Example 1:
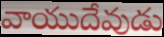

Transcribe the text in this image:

వాయుదేవుడు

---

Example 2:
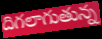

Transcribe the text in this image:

దిగలాగుతున్న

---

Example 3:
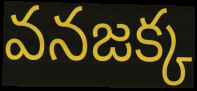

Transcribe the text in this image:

వనజక్క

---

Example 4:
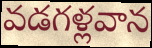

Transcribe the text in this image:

వడగళ్లవాన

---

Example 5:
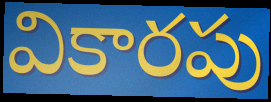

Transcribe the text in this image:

వికారపు